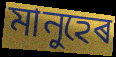
মানুহেৰ